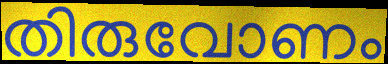
തിരുവോണം